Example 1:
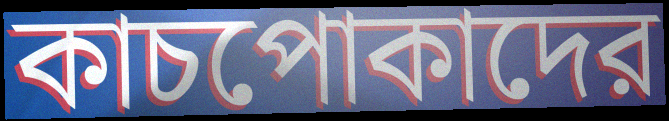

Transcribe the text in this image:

কাচপোকাদের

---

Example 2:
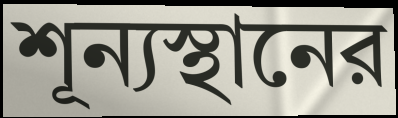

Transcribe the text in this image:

শূন্যস্থানের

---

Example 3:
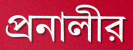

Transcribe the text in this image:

প্রনালীর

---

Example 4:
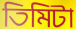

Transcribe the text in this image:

তিমিটা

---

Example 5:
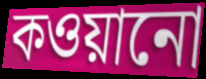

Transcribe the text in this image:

কওয়ানো